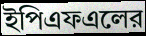
ইপিএফএলের